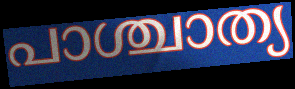
പാശ്ചാത്യ